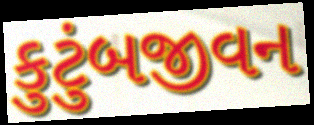
કુટુંબજીવન